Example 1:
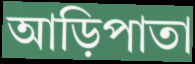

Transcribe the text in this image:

আড়িপাতা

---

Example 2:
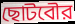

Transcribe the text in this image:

ছোটবৌর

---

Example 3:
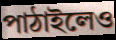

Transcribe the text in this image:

পাঠাইলেও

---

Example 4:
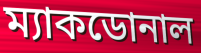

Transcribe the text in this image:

ম্যাকডোনাল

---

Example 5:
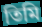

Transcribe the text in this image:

তিমি